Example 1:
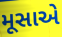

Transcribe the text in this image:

મૂસાએ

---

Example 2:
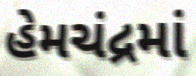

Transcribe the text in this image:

હેમચંદ્રમાં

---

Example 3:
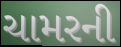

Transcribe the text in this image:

ચામરની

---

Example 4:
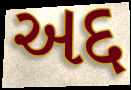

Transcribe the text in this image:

અદ્દ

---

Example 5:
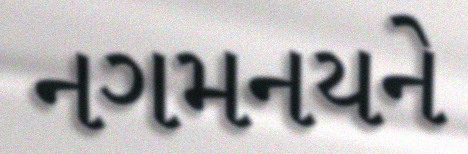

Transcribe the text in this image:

નગમનયને